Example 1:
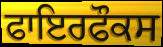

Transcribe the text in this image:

ਫਾਇਰਫੌਕਸ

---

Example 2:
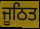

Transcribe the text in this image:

ਜੂਠਿਤ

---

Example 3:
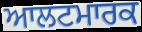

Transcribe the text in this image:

ਆਲਟਮਾਰਕ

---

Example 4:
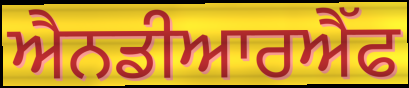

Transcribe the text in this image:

ਐਨਡੀਆਰਐੱਫ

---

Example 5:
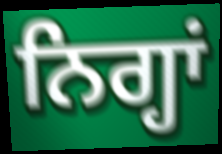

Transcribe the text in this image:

ਨਿਗ੍ਹਾਂ